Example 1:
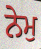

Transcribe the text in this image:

ਨੇਮੁ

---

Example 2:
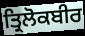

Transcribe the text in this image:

ਤ੍ਰਿਲੋਕਬੀਰ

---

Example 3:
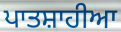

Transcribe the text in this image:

ਪਾਤਸ਼ਾਹੀਆ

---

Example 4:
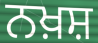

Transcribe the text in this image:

ਨਖ਼ਸ਼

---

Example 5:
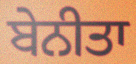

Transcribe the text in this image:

ਬੇਨੀਤਾ